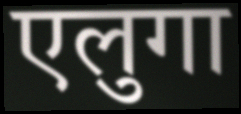
एलुगा